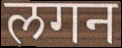
लगन